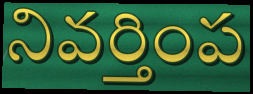
నివర్తింప